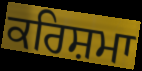
ਕਰਿਸ਼ਮਾ